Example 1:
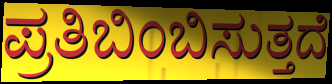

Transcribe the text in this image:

ಪ್ರತಿಬಿಂಬಿಸುತ್ತದೆ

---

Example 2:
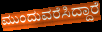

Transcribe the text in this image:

ಮುಂದುವರೆಸಿದ್ದಾರೆ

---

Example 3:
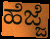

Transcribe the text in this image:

ಹೆಜ್ಜೆ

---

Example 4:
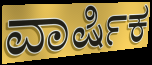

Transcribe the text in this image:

ವಾರ್ಷಿಕ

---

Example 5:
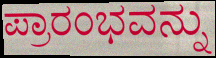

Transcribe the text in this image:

ಪ್ರಾರಂಭವನ್ನು